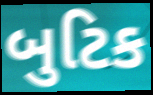
બુટિક